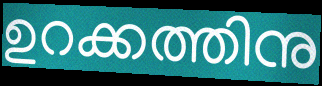
ഉറക്കത്തിനു